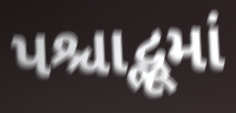
પશ્ચાદ્ભૂમાં